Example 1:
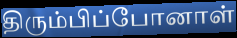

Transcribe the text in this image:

திரும்பிப்போனாள்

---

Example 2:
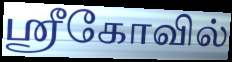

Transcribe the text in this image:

ஸ்ரீகோவில்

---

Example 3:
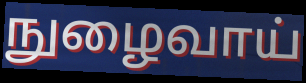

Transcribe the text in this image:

நுழைவாய்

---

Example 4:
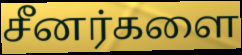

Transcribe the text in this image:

சீனர்களை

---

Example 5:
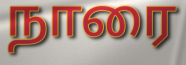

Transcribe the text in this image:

நாரை